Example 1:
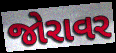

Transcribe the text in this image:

જોરાવર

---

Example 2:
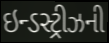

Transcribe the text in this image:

ઇન્ડસ્ટ્રીઝની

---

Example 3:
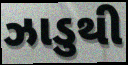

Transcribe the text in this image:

ઝાડુથી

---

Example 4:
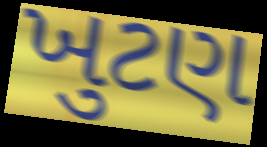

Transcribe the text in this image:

ખુટણ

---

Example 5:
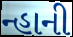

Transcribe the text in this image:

ન્હાની